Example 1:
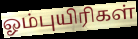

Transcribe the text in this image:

ஓம்புயிரிகள்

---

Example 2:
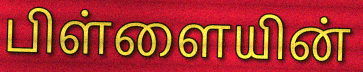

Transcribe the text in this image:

பிள்ளையின்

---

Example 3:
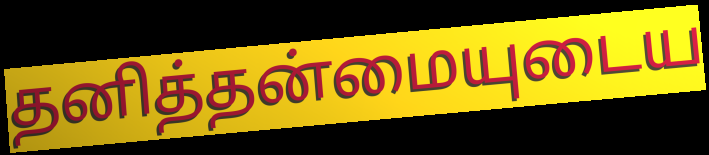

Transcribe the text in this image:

தனித்தன்மையுடைய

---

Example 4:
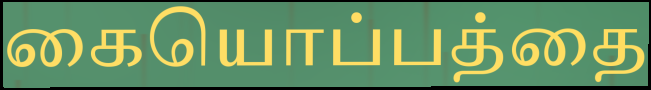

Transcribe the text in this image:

கையொப்பத்தை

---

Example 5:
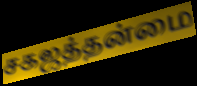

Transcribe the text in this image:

சகஜத்தன்மை